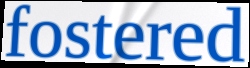
fostered